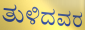
ತುಳಿದವರ